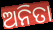
ଅନିତା